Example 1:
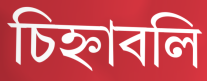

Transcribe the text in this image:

চিহ্নাবলি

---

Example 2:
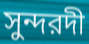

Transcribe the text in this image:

সুন্দরদী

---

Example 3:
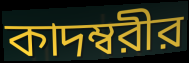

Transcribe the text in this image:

কাদম্বরীর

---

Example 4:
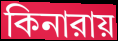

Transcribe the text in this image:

কিনারায়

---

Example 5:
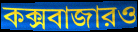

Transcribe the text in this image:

কক্সবাজারও